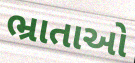
ભ્રાતાઓ